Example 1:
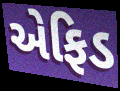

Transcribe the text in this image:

એફિડ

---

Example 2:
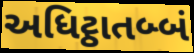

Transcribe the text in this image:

અધિટ્ઠાતબ્બં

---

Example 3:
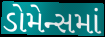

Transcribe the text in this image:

ડોમેન્સમાં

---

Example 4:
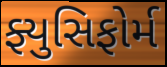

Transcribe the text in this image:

ફ્યુસિફોર્મ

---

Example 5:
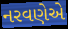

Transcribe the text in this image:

નરવણેએ